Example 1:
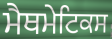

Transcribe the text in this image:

ਮੈਥਮੇਟਿਕਸ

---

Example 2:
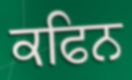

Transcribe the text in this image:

ਕਫਿਨ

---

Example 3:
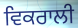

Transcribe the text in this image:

ਵਿਕਰਾਲੀ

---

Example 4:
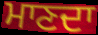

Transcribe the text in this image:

ਮਾਣਦਾ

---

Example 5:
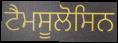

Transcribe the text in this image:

ਟੈਮਸੂਲੋਸਿਨ